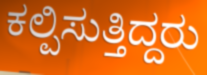
ಕಲ್ಪಿಸುತ್ತಿದ್ದರು